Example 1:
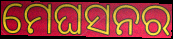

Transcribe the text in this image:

ମେଘସନର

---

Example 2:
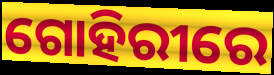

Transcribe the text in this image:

ଗୋହିରୀରେ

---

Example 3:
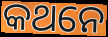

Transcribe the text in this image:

କଥନେ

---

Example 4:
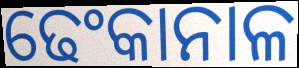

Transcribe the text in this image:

ଢେଂକାନାଳ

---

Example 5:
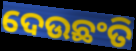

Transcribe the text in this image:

ଦେଉଛଂତି